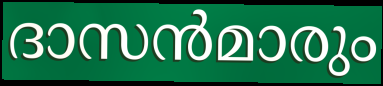
ദാസൻമാരും